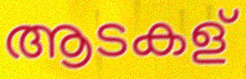
ആടകള്